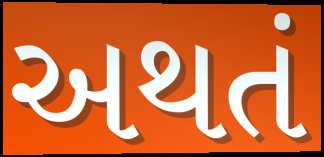
અથતં